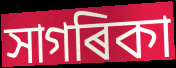
সাগৰিকা